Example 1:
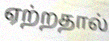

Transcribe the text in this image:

ஏற்றதால்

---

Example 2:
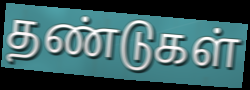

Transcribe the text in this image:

தண்டுகள்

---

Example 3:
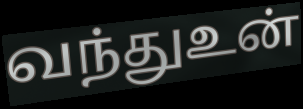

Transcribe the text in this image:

வந்துஉன்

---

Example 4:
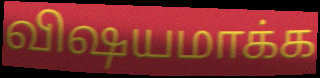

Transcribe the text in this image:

விஷயமாக்க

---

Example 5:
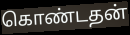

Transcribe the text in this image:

கொண்டதன்